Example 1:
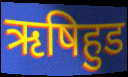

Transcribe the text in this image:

ऋषिहुड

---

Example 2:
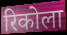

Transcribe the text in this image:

रिकोला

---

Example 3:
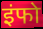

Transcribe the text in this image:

इंफो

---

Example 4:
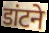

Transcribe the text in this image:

डांटने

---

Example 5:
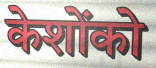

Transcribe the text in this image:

केशोंको